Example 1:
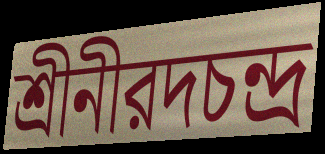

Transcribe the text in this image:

শ্রীনীরদচন্দ্র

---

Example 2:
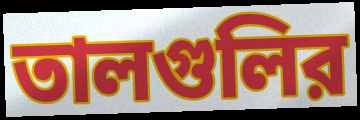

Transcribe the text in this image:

তালগুলির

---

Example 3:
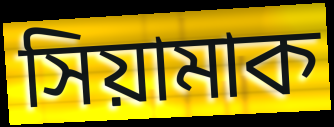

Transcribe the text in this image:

সিয়ামাক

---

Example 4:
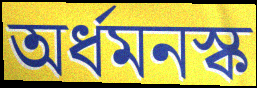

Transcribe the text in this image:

অর্ধমনস্ক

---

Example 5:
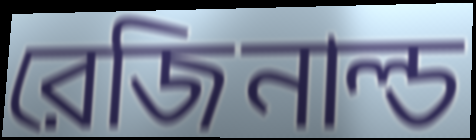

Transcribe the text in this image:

রেজিনাল্ড